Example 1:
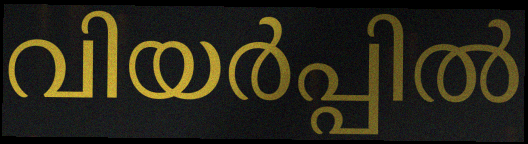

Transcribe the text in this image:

വിയർപ്പിൽ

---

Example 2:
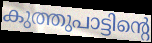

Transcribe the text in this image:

കുത്തുപാട്ടിന്റെ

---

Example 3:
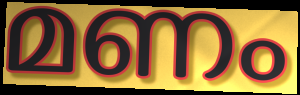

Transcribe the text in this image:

മണം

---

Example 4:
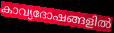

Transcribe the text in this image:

കാവ്യദോഷങ്ങളിൽ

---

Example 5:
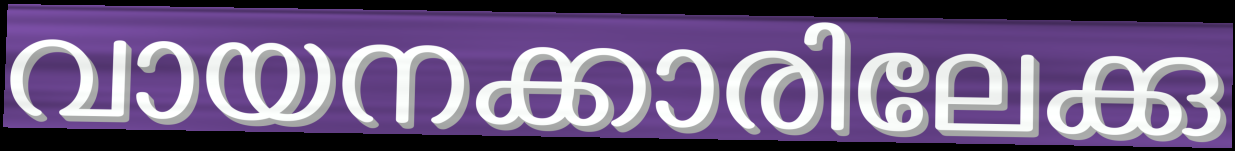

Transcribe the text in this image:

വായനക്കാരിലേക്കു